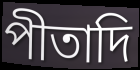
পীতাদি